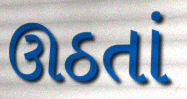
ઊઠતાં